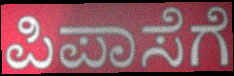
ಪಿಪಾಸೆಗೆ